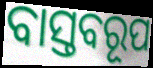
ବାସ୍ତବରୂପ